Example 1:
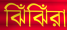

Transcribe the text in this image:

ঝিঁঝিঁরা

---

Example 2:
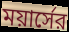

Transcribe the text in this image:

ময়ার্সের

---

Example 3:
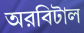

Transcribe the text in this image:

অরবিটাল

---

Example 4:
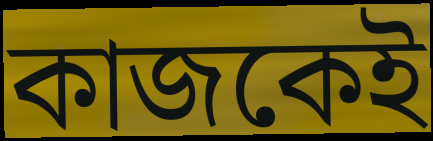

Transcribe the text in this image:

কাজকেই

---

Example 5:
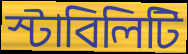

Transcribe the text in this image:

স্টাবিলিটি